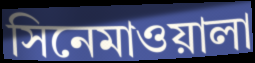
সিনেমাওয়ালা